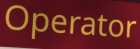
Operator